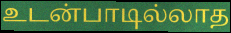
உடன்பாடில்லாத